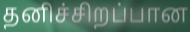
தனிச்சிறப்பான